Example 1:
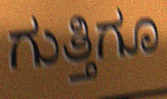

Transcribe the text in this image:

ಗುತ್ತಿಗೂ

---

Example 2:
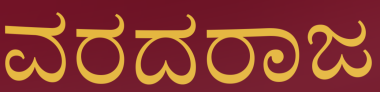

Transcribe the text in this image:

ವರದರಾಜ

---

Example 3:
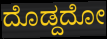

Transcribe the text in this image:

ದೊಡ್ದದೋ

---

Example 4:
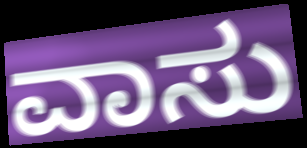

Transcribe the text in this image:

ವಾಸು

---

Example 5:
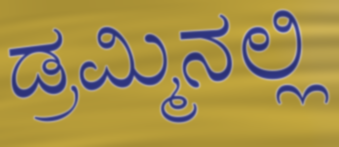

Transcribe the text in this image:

ಡ್ರಮ್ಮಿನಲ್ಲಿ